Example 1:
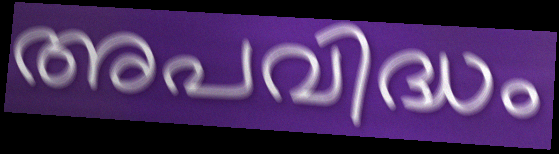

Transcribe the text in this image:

അപവിദ്ധം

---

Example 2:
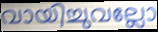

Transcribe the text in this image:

വായിച്ചുവല്ലോ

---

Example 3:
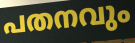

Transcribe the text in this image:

പതനവും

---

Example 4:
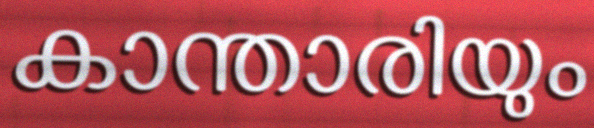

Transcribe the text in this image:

കാന്താരിയും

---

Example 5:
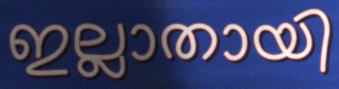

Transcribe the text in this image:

ഇല്ലാതായി